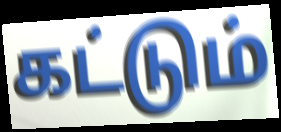
கட்டும்